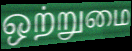
ஒற்றுமை